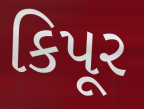
કિપૂર